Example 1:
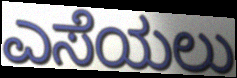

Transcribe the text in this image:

ಎಸೆಯಲು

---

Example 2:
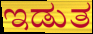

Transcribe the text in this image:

ಇಡುತ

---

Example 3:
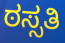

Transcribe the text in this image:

ಠಸ್ಸತಿ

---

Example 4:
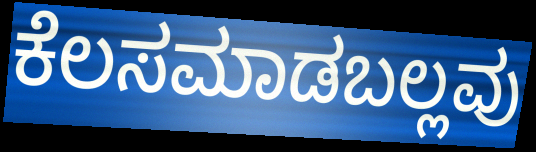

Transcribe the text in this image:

ಕೆಲಸಮಾಡಬಲ್ಲವು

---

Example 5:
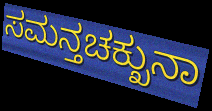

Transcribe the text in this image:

ಸಮನ್ತಚಕ್ಖುನಾ